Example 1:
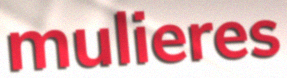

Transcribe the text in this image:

mulieres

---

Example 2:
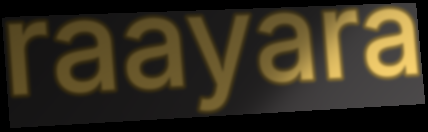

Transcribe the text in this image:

raayara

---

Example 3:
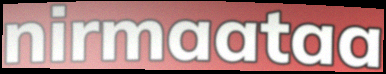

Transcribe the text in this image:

nirmaataa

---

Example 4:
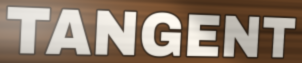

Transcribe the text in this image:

TANGENT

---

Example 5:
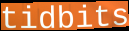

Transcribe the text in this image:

tidbits